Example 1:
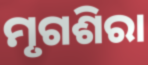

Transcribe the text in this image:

ମୃଗଶିରା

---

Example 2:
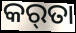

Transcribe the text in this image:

କର୍‌ତା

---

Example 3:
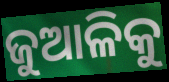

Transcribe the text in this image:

ଜୁଆଳିକୁ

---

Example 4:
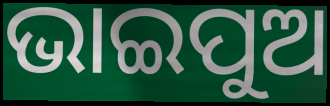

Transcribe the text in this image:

ଭାଇପୁଅ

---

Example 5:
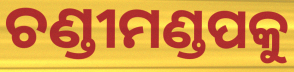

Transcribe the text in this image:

ଚଣ୍ଡୀମଣ୍ଡପକୁ